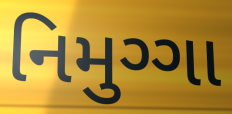
નિમુગ્ગા